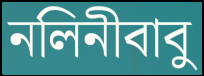
নলিনীবাবু